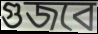
গুজবে